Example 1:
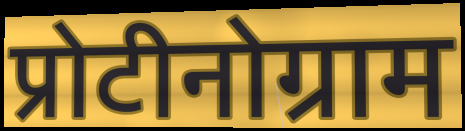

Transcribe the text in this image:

प्रोटीनोग्राम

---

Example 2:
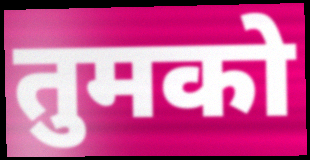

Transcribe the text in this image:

तुमको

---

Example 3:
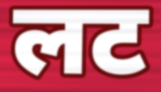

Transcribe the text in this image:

लट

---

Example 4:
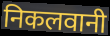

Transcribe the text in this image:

निकलवानी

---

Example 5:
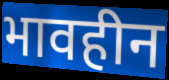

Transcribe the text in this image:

भावहीन